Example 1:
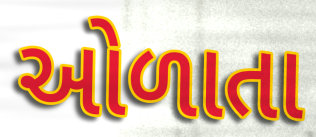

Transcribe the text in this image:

ઓળાતા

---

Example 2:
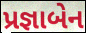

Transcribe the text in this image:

પ્રજ્ઞાબેન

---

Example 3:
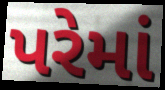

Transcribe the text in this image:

પરેમાં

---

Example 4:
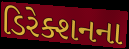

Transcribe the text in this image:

ડિરેક્શનના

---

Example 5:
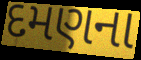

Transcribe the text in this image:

દમણના